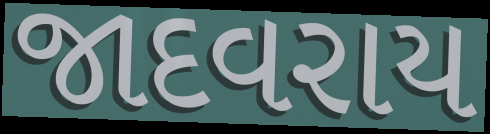
જાદવરાય